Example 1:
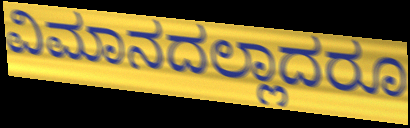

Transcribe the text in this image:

ವಿಮಾನದಲ್ಲಾದರೂ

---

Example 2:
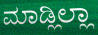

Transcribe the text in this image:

ಮಾಡ್ಲಿಲ್ಲಾ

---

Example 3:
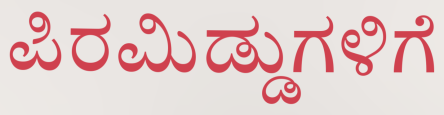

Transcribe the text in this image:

ಪಿರಮಿಡ್ಡುಗಳಿಗೆ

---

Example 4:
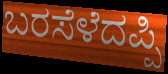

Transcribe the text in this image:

ಬರಸೆಳೆದಪ್ಪಿ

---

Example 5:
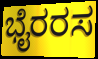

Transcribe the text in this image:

ಭೈರರಸ